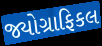
જ્યોગ્રાફિકલ